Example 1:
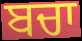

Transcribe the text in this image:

ਬਚਾ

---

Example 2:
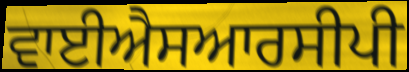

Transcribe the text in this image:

ਵਾਈਐਸਆਰਸੀਪੀ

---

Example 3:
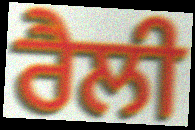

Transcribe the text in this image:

ਰੈਲੀ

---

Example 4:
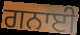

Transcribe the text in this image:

ਗਨਾਈ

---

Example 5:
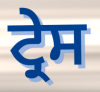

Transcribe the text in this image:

ਟ੍ਰੇਸ